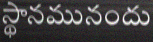
స్థానమునందు